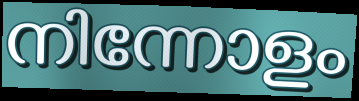
നിന്നോളം